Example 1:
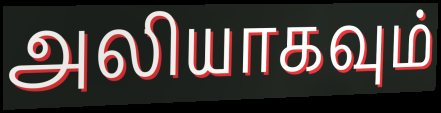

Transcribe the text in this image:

அலியாகவும்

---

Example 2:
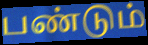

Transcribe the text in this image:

பண்டும்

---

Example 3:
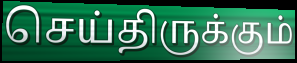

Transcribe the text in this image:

செய்திருக்கும்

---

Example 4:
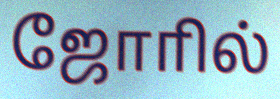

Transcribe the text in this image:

ஜோரில்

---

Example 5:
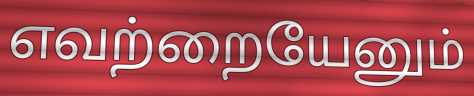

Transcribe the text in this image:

எவற்றையேனும்